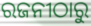
ରଜନୀଠାରୁ